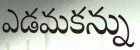
ఎడమకన్ను